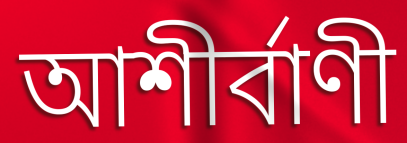
আশীর্বাণী